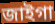
জাইগা